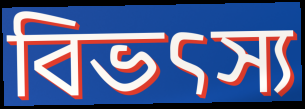
বিভৎস্য